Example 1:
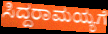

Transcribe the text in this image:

ಸಿದ್ದರಾಮಯ್ಯಗೆ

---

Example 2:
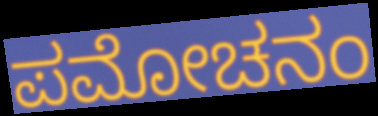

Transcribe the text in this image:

ಪಮೋಚನಂ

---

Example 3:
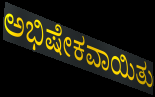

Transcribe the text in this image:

ಅಭಿಷೇಕವಾಯಿತು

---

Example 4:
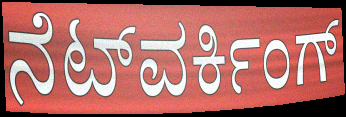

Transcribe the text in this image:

ನೆಟ್‌ವರ್ಕಿಂಗ್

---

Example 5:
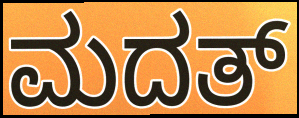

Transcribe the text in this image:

ಮದತ್